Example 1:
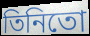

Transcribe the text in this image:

তিনিতো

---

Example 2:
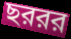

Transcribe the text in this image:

ছররর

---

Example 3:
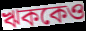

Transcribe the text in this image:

ঋককেও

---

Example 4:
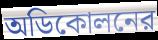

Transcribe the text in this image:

অডিকোলনের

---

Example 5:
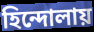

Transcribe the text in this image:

হিন্দোলায়